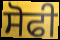
ਸੋਫੀ